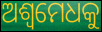
ଅଶ୍ୱମେଧକୁ